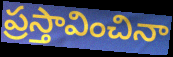
ప్రస్తావించినా